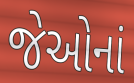
જેઓનાં